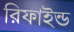
রিফাইন্ড